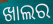
ଖାଲର